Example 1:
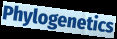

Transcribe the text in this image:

Phylogenetics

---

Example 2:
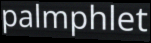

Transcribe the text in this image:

palmphlet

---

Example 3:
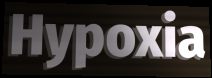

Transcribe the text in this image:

Hypoxia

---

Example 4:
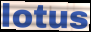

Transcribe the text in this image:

lotus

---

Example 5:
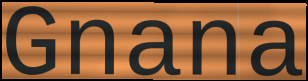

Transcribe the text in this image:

Gnana